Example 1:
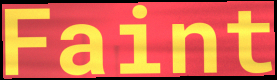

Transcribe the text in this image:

Faint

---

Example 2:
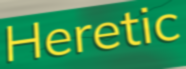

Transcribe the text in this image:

Heretic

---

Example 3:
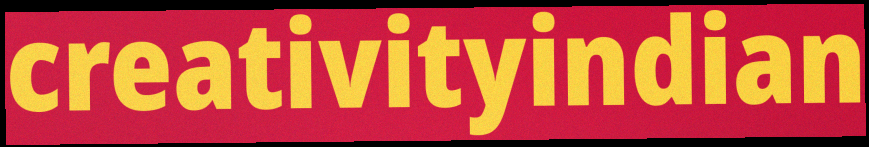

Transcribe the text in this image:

creativityindian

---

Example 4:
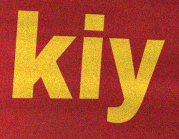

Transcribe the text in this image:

kiy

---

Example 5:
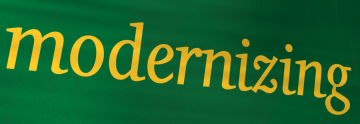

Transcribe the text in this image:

modernizing